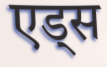
एड्स